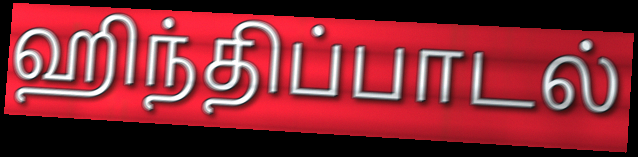
ஹிந்திப்பாடல்